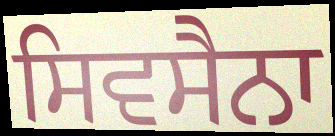
ਸਿਵਸੈਨਾ